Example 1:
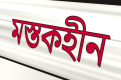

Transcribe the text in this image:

মস্তকহীন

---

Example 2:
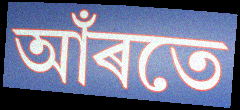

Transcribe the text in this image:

আঁৰতে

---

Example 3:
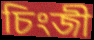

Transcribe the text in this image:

চিংজী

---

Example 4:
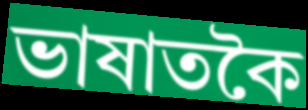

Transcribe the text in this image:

ভাষাতকৈ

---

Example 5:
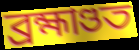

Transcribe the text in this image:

ব্ৰহ্মাণ্ডত